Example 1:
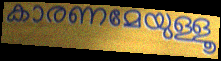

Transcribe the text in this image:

കാരണമേയുള്ളൂ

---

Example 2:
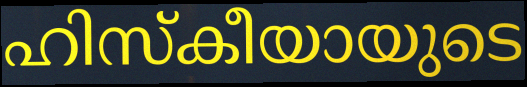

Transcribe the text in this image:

ഹിസ്കീയായുടെ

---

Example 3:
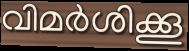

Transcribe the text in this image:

വിമർശിക്കൂ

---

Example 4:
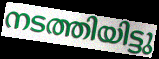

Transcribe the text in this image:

നടത്തിയിട്ടു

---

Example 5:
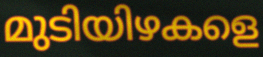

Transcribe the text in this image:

മുടിയിഴകളെ